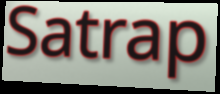
Satrap